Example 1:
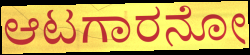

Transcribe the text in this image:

ಆಟಗಾರನೋ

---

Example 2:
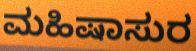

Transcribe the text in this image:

ಮಹಿಷಾಸುರ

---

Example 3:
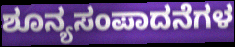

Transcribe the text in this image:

ಶೂನ್ಯಸಂಪಾದನೆಗಳ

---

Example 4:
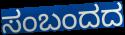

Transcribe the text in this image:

ಸಂಬಂದದ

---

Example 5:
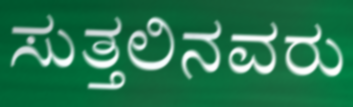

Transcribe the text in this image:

ಸುತ್ತಲಿನವರು